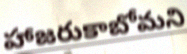
హాజరుకాబోమని